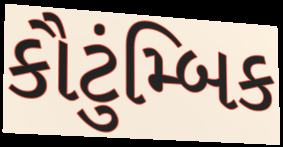
કૌટુંમ્બિક